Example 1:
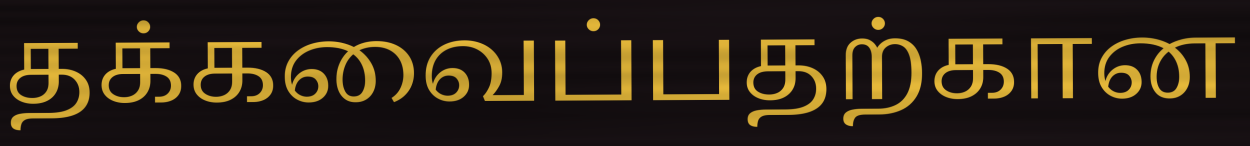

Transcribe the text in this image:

தக்கவைப்பதற்கான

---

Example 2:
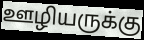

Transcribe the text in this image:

ஊழியருக்கு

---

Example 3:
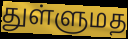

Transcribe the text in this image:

துள்ளுமத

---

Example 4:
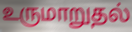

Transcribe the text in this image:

உருமாறுதல்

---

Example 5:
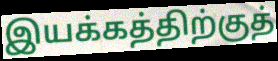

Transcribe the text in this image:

இயக்கத்திற்குத்